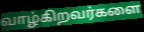
வாழ்கிறவர்களை